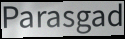
Parasgad